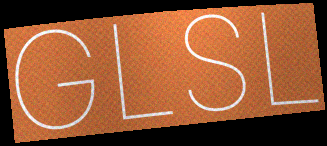
GLSL